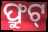
ଫ୍ରୁଟ୍